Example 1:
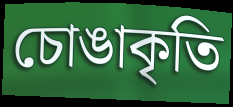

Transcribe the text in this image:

চোঙাকৃতি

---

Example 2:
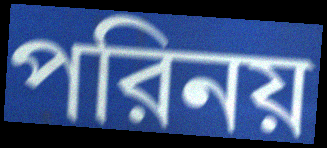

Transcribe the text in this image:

পরিনয়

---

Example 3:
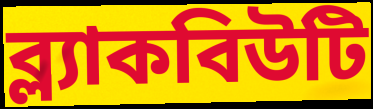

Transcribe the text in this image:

ব্ল্যাকবিউটি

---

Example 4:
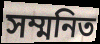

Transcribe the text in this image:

সম্মনিত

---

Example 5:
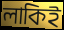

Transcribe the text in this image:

লাকিই